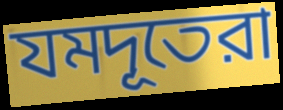
যমদূতেরা